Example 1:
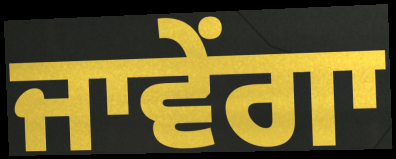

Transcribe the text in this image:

ਜਾਵੇਂਗਾ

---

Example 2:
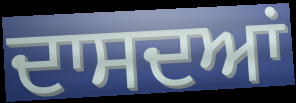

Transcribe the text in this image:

ਦਾਸਦਆਂ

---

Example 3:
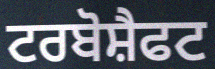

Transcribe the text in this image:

ਟਰਬੋਸ਼ੈਫਟ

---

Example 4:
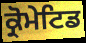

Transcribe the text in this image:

ਕ੍ਰੋਮੇਟਿਡ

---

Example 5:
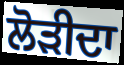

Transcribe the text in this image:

ਲੋੜੀਦਾ